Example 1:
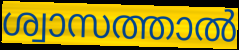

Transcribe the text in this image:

ശ്വാസത്താൽ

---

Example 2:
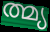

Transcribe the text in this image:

ത്മ്യ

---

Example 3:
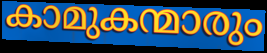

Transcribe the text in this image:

കാമുകന്മാരും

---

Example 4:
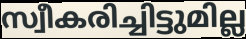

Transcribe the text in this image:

സ്വീകരിച്ചിട്ടുമില്ല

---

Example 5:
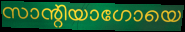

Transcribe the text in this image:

സാന്റിയാഗോയെ